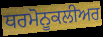
ਥਰਮੋਨੂਕਲੀਅਰ